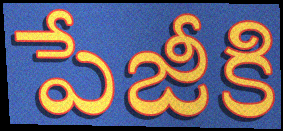
పేజీకి